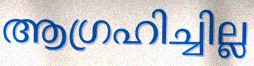
ആഗ്രഹിച്ചില്ല